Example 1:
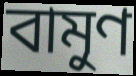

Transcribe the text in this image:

বামুণ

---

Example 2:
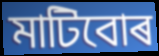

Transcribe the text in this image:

মাটিবোৰ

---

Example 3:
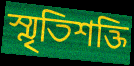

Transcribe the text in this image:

স্মৃতিশক্তি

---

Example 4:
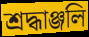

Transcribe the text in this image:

শ্ৰদ্ধাঞ্জলি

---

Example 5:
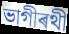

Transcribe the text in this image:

ভাগীৰথী